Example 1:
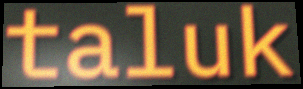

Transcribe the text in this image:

taluk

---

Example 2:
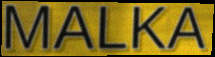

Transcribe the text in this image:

MALKA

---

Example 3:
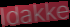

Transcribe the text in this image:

Idakke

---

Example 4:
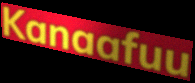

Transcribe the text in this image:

Kanaafuu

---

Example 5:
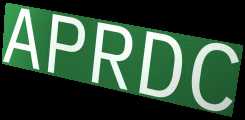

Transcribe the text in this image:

APRDC